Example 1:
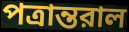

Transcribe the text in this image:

পত্রান্তরাল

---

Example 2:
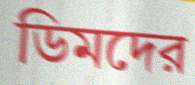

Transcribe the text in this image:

ডিমদের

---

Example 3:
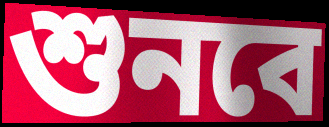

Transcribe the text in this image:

শুনবে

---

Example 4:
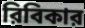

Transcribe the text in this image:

রিবিকার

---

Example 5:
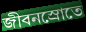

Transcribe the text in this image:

জীবনস্রোতে